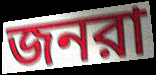
জনরা